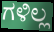
ಗಳಿಲ್ಲ